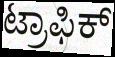
ಟ್ರಾಫಿಕ್